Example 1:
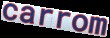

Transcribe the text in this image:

carrom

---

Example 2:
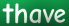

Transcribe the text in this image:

thave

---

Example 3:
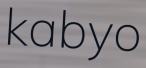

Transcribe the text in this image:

kabyo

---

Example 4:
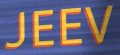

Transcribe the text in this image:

JEEV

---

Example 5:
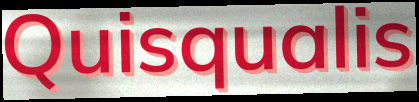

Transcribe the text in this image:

Quisqualis